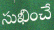
సుఖించే